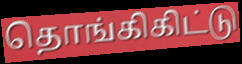
தொங்கிகிட்டு